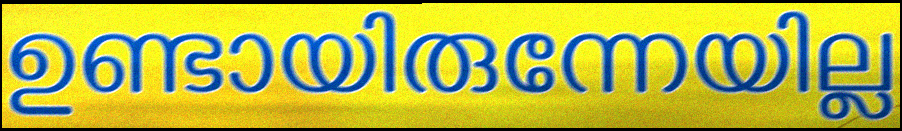
ഉണ്ടായിരുന്നേയില്ല